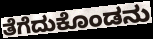
ತೆಗೆದುಕೊಂಡನು